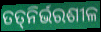
ତତ୍‍ନିର୍ଭରଶୀଳ